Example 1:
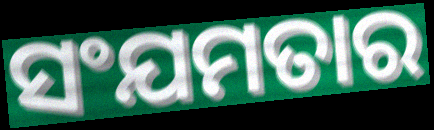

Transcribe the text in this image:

ସଂଯମତାର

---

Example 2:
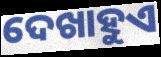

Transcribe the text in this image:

ଦେଖାହୁଏ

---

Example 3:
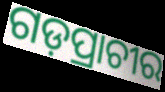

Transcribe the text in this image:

ଗଡ଼ପ୍ରାଚୀର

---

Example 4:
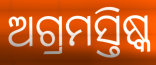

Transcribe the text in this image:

ଅଗ୍ରମସ୍ତିଷ୍କ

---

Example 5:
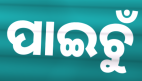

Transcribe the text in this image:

ପାଇଚୁଁ